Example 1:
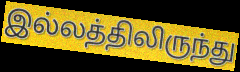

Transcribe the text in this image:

இல்லத்திலிருந்து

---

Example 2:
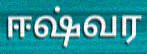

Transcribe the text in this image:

ஈஷ்வர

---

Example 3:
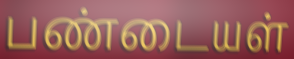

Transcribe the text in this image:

பண்டையள்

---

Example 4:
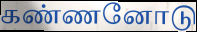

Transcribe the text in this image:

கண்ணனோடு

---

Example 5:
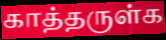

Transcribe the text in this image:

காத்தருள்க